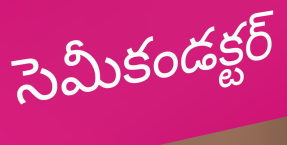
సెమీకండక్టర్